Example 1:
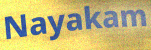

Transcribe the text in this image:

Nayakam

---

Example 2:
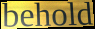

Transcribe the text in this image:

behold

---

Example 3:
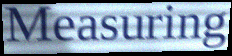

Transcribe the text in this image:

Measuring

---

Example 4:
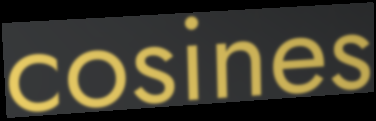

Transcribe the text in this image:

cosines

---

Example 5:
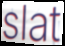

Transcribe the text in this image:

slat